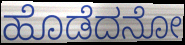
ಹೊಡೆದನೋ